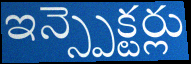
ఇన్స్పెక్టర్లు